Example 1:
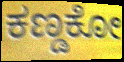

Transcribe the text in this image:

ಕಣ್ಡಕೋ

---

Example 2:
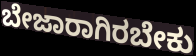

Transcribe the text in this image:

ಬೇಜಾರಾಗಿರಬೇಕು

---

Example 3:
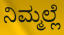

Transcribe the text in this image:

ನಿಮ್ಮಲ್ಲೆ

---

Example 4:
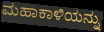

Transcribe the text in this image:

ಮಹಾಕಾಳಿಯನ್ನು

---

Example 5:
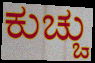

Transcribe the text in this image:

ಕುಚ್ಚು